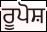
ਰੂਪੋਸ਼